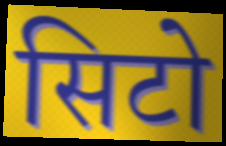
सिटो